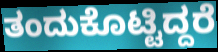
ತಂದುಕೊಟ್ಟಿದ್ದರೆ